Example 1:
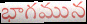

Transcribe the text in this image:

భాగమున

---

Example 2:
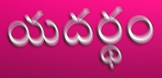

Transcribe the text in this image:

యదర్థం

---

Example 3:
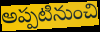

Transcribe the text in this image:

అప్పటినుంచి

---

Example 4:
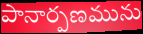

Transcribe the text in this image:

పానార్పణమును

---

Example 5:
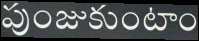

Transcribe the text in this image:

పుంజుకుంటాం